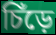
চিঁড়ে